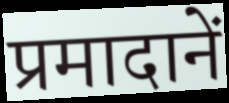
प्रमादानें